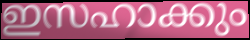
ഇസഹാക്കും